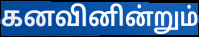
கனவினின்றும்